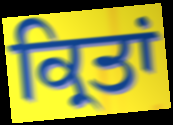
ਕ੍ਰਿਤਾਂ